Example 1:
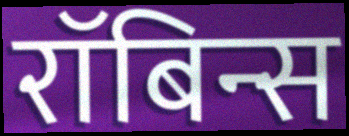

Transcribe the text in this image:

रॉबिन्स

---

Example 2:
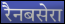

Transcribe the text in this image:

रैनबसेरा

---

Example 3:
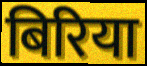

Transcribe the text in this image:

बिरिया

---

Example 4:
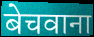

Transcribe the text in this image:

बेचवाना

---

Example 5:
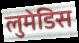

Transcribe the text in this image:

लुमेडिस